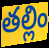
తల్లిం